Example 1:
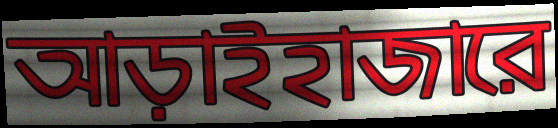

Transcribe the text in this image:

আড়াইহাজারে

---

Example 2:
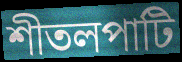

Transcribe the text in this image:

শীতলপাটি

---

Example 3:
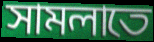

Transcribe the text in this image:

সামলাতে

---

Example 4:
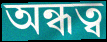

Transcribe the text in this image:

অন্ধত্ব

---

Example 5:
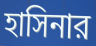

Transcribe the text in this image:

হাসিনার